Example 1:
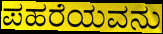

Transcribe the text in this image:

ಪಹರೆಯವನು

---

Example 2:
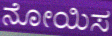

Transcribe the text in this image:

ನೋಯಿಸ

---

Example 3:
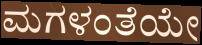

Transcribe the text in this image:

ಮಗಳಂತೆಯೇ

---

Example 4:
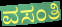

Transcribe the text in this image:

ವಸಂತಿ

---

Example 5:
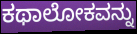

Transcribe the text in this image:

ಕಥಾಲೋಕವನ್ನು